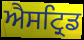
ਐਸਟ੍ਰਿਡ